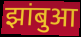
झांबुआ